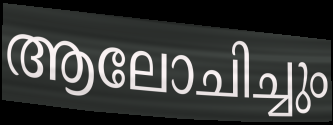
ആലോചിച്ചും